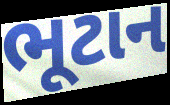
ભૂટાન